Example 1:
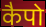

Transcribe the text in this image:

कैपो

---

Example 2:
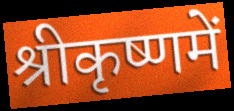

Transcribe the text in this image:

श्रीकृष्णमें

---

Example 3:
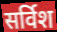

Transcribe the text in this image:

सर्विश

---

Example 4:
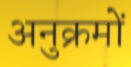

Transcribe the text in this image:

अनुक्रमों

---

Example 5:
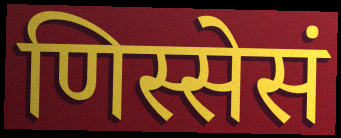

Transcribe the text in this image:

णिस्सेसं